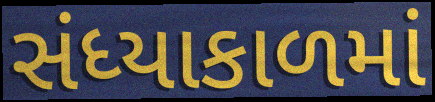
સંધ્યાકાળમાં